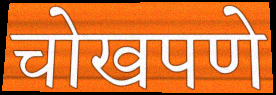
चोखपणे